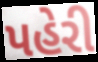
પહેરી